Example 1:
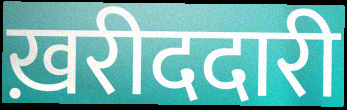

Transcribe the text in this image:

ख़रीददारी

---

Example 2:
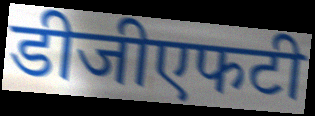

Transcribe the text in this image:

डीजीएफटी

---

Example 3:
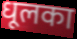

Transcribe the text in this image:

धूलका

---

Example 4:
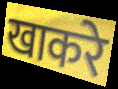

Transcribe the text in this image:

खाकरे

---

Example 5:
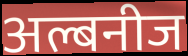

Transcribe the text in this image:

अल्‍बनीज